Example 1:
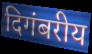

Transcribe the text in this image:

दिगंबरीय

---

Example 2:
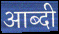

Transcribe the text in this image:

आब्दी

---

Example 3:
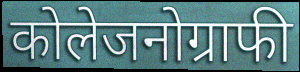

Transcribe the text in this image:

कोलेजनोग्राफी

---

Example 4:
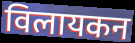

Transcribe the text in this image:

विलायकन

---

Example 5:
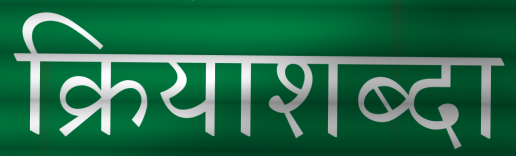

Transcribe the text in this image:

क्रियाशब्दा